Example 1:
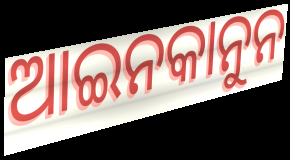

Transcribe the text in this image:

ଆଇନକାନୁନ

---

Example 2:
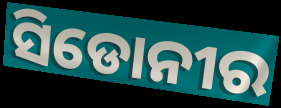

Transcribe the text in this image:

ସିଡୋନୀର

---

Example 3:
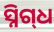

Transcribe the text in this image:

ସ୍ନିଗ୍‍ଧ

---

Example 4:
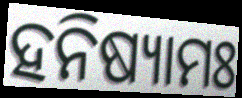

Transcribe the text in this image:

ହନିଷ୍ୟାମଃ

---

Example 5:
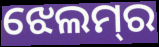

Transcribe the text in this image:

ଝେଲମ୍‌ର